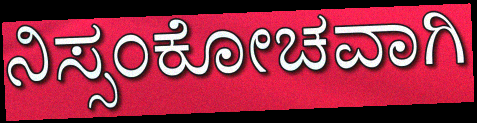
ನಿಸ್ಸಂಕೋಚವಾಗಿ